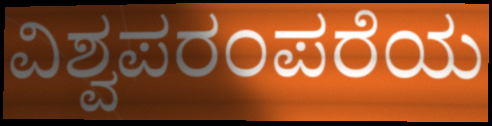
ವಿಶ್ವಪರಂಪರೆಯ